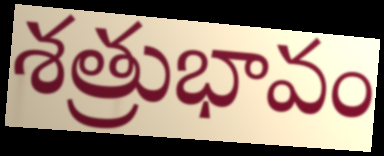
శత్రుభావం